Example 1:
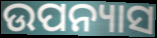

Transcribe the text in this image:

ଉପନ୍ୟାସ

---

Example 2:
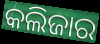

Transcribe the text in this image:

କଲିଜାର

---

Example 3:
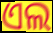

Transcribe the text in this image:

ଏଲ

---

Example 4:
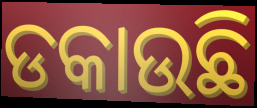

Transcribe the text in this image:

ଡକାଉଛି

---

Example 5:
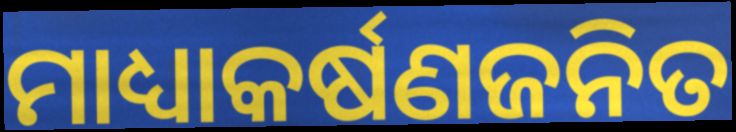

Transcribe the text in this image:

ମାଧ୍ୟାକର୍ଷଣଜନିତ